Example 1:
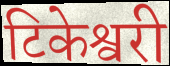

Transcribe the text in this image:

टिकेश्वरी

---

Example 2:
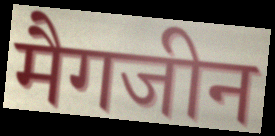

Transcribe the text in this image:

मैगजीन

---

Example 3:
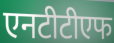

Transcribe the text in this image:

एनटीटीएफ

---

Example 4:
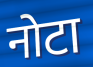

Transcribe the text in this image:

नोटा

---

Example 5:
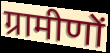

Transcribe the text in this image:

ग्रामीणों